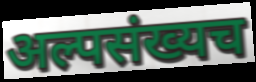
अल्पसंख्यच